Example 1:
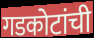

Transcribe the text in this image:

गडकोटांची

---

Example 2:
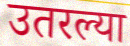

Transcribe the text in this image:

उतरल्या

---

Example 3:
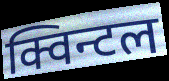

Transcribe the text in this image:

क्विन्टल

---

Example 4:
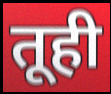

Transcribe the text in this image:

तूही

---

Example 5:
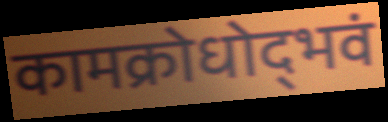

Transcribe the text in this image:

कामक्रोधोद्भवं